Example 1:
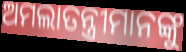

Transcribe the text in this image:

ଅମଲାତନ୍ତ୍ରୀମାନଙ୍କୁ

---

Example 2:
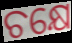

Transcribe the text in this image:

ଚକ୍ଷେ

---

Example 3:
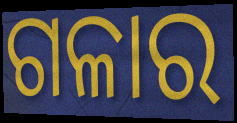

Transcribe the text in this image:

ଗଳାର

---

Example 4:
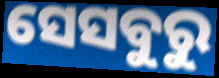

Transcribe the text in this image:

ସେସବୁରୁ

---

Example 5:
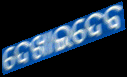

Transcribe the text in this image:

ଦେଖାଇଦେବ